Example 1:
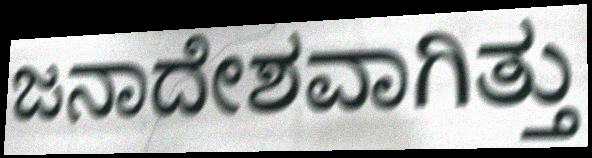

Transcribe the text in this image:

ಜನಾದೇಶವಾಗಿತ್ತು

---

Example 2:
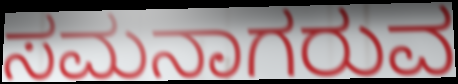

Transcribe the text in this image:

ಸಮನಾಗರುವ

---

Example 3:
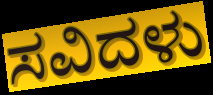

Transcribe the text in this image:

ಸವಿದಳು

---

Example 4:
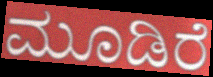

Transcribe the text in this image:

ಮೂಡಿರೆ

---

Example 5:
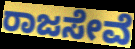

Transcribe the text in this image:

ರಾಜಸೇವೆ